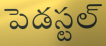
పెడస్టల్